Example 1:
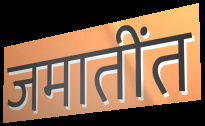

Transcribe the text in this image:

जमातींत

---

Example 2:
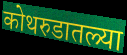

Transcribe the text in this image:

कोथरुडातल्या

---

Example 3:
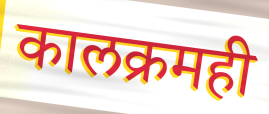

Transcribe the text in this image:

कालक्रमही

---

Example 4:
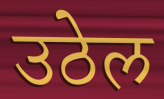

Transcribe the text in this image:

उठेल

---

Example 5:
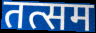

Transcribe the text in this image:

तत्सम